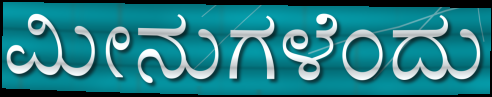
ಮೀನುಗಳೆಂದು